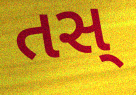
તસ્